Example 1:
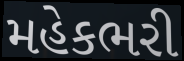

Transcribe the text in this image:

મહેકભરી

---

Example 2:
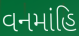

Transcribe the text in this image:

વનમાંહિ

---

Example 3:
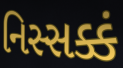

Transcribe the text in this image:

નિસ્સક્કં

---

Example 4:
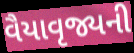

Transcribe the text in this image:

વૈયાવૃજ્યની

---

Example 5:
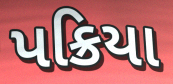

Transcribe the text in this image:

પક્રિયા